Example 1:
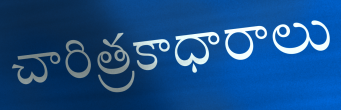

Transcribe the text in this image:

చారిత్రకాధారాలు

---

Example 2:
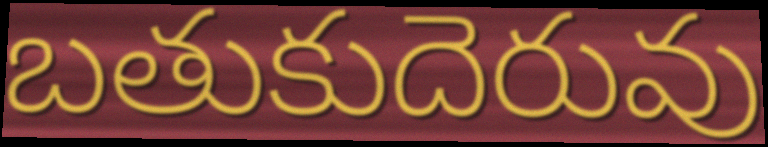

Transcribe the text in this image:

బతుకుదెరువు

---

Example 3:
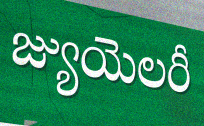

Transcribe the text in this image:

జ్యుయెలరీ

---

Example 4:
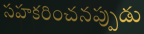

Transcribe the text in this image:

సహకరించనప్పుడు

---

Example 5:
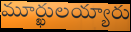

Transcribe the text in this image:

మూర్ఖులయ్యారు